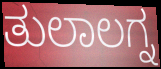
ತುಲಾಲಗ್ನ